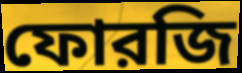
ফোরজি